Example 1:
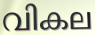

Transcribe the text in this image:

വികല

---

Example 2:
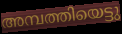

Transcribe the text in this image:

അമ്പത്തിയെട്ടു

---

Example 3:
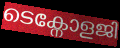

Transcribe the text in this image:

ടെക്നോളജി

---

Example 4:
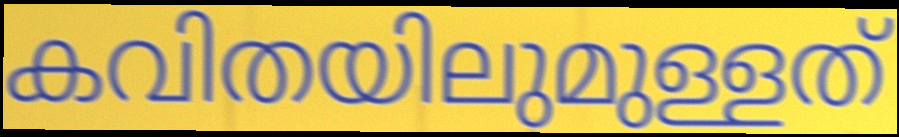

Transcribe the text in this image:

കവിതയിലുമുള്ളത്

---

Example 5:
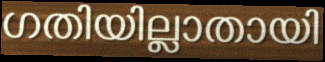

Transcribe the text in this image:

ഗതിയില്ലാതായി